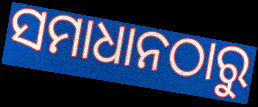
ସମାଧାନଠାରୁ